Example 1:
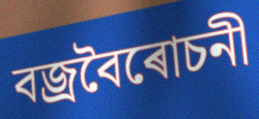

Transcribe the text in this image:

বজ্ৰবৈৰোচনী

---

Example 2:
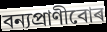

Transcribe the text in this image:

বন্যপ্ৰাণীবোৰ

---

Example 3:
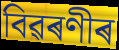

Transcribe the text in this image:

বিৱৰণীৰ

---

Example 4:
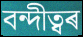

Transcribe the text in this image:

বন্দীত্বৰ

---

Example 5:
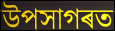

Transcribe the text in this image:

উপসাগৰত